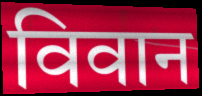
विवान